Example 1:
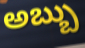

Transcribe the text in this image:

అబ్బు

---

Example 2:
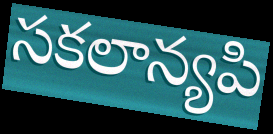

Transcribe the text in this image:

సకలాన్యపి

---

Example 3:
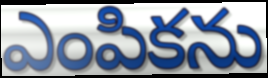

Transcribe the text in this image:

ఎంపికను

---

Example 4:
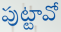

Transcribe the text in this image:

పుట్టావో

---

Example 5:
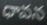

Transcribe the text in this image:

ధావన